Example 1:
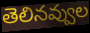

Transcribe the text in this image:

తెలినవ్వుల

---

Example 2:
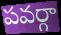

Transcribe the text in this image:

పవర్గా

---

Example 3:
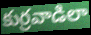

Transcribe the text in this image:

కుర్రవాడిలా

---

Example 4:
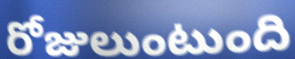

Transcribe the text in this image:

రోజులుంటుంది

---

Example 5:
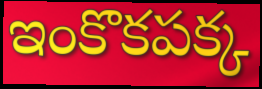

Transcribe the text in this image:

ఇంకొకపక్క